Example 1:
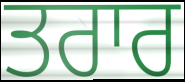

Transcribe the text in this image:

ਤਰਾਰ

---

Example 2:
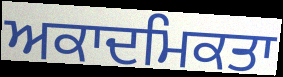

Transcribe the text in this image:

ਅਕਾਦਮਿਕਤਾ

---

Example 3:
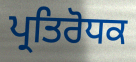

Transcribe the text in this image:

ਪ੍ਰਤਿਰੋਧਕ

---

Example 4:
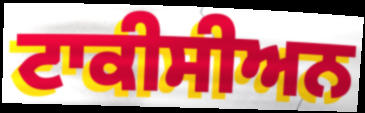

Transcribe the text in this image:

ਟਾਕੀਸੀਅਨ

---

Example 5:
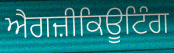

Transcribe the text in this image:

ਐਗਜ਼ੀਕਿਊਟਿੰਗ